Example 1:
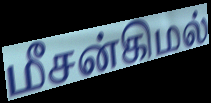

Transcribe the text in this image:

மீசன்கிமல்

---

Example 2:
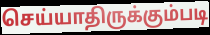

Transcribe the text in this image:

செய்யாதிருக்கும்படி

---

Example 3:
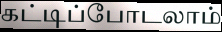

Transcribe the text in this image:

கட்டிப்போடலாம்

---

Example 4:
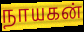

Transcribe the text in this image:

நாயகன்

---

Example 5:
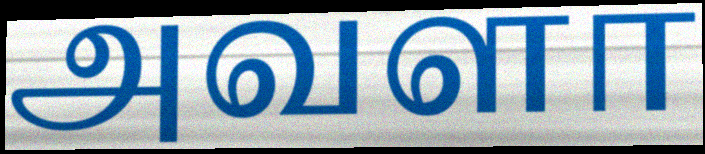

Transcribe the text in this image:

அவளா